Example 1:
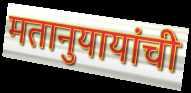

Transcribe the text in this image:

मतानुयायांची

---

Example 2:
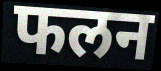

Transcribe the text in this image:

फलन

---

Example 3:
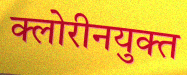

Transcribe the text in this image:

क्लोरीनयुक्त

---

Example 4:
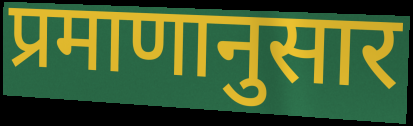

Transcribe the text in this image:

प्रमाणानुसार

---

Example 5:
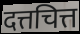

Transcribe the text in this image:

दत्तचित्त